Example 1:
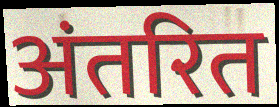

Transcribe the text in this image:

अंतरित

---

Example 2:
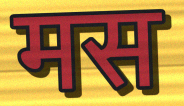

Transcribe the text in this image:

मस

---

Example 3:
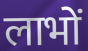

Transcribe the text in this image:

लाभों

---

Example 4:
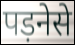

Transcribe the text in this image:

पड़नेसे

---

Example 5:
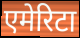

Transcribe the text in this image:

एमेरिटा